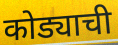
कोड्याची